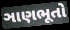
ઞાણભૂતો